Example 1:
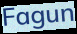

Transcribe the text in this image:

Fagun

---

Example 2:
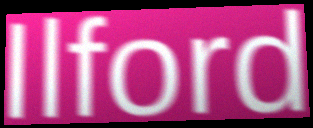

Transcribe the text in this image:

Ilford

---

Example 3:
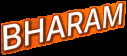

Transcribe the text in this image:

BHARAM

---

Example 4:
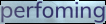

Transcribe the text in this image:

perfoming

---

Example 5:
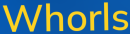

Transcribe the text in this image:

Whorls